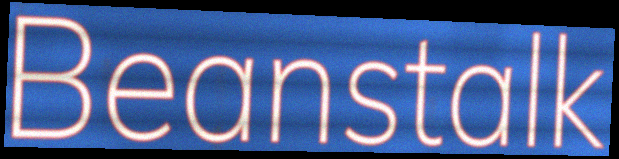
Beanstalk